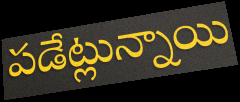
పడేట్లున్నాయి